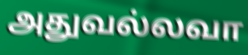
அதுவல்லவா